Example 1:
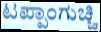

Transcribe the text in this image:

ಟಪ್ಪಾಂಗುಚ್ಚಿ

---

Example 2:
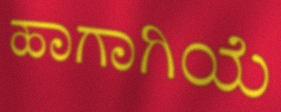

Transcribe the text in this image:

ಹಾಗಾಗಿಯೆ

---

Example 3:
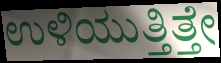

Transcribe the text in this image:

ಉಳಿಯುತ್ತಿತ್ತೇ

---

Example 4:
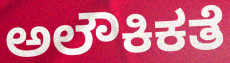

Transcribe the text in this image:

ಅಲೌಕಿಕತೆ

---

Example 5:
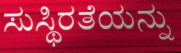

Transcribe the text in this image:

ಸುಸ್ಥಿರತೆಯನ್ನು